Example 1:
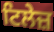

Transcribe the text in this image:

ਟਿਲੇਜ਼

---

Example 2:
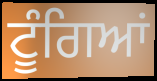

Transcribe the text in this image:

ਟੂੰਗਿਆਂ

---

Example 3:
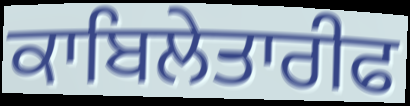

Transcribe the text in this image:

ਕਾਬਿਲੇਤਾਰੀਫ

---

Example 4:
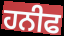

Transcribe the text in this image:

ਹਨੀਫ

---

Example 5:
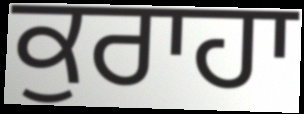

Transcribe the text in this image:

ਕੁਰਾਹਾ